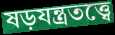
ষড়যন্ত্রতত্ত্বে